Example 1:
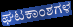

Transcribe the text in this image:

ಘಟಕಾಂಶಗಳ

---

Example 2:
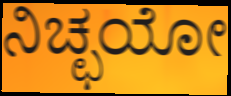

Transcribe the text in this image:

ನಿಚ್ಛಯೋ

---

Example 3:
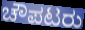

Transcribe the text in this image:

ಚೌಪಟರು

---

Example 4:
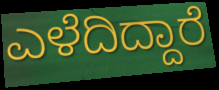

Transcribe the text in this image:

ಎಳೆದಿದ್ದಾರೆ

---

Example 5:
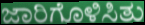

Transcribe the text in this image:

ಜಾರಿಗೊಳಿಸಿತು